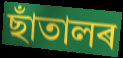
ছাঁতালৰ